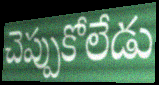
చెప్పుకోలేడు